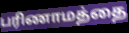
பரிணாமத்தை